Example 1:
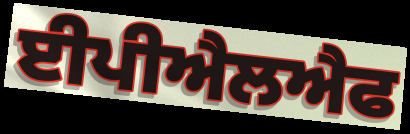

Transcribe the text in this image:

ਈਪੀਐਲਐਫ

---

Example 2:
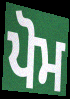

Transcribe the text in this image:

ਪੋਮ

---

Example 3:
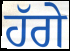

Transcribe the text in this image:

ਹੱਗੇ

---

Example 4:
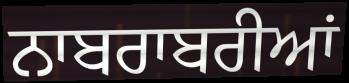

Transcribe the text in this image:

ਨਾਬਰਾਬਰੀਆਂ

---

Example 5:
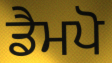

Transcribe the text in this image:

ਡੈਮਪੋ